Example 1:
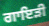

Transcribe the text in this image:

ਗਾਇੜੀ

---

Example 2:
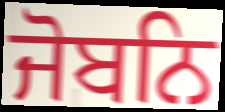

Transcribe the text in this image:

ਜੋਬਨਿ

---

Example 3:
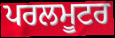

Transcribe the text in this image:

ਪਰਲਮੂਟਰ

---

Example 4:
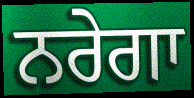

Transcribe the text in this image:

ਨਰੇਗਾ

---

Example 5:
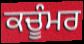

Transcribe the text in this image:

ਕਚੂੰਮਰ